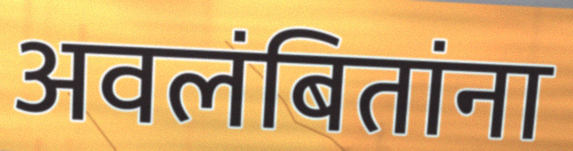
अवलंबितांना